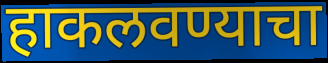
हाकलवण्याचा